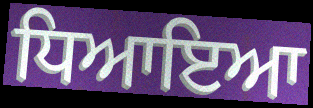
ਧਿਆਇਆ